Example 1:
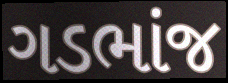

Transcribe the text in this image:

ગડભાંજ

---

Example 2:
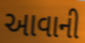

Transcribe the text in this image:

આવાની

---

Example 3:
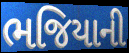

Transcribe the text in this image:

ભજિયાની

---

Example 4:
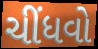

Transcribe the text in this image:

ચીંધવો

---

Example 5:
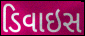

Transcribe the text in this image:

ડિવાઇસ